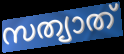
സത്യാത്